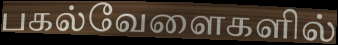
பகல்வேளைகளில்